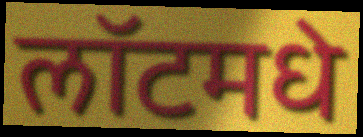
लॉटमधे